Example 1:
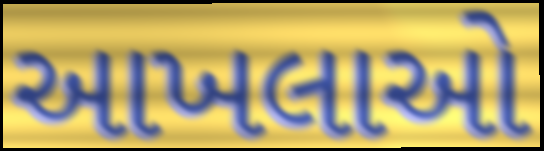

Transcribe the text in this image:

આખલાઓ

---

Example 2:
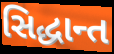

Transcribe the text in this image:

સિદ્ધાન્ત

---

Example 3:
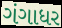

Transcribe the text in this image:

ગંગાધર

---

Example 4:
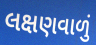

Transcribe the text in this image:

લક્ષણવાળું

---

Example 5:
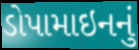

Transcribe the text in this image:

ડોપામાઇનનું